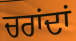
ਚਰਾਂਦਾਂ